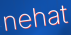
nehat